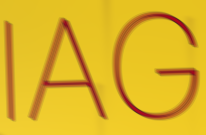
IAG